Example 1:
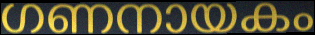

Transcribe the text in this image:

ഗണനായകം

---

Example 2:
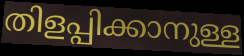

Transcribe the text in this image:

തിളപ്പിക്കാനുള്ള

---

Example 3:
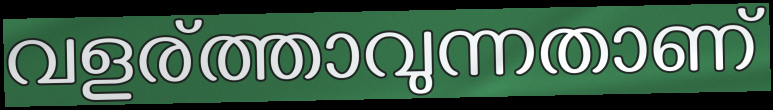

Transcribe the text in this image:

വളര്ത്താവുന്നതാണ്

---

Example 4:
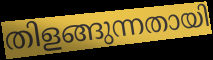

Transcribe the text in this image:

തിളങ്ങുന്നതായി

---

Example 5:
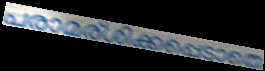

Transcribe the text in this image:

പരാമര്ശിക്കപ്പെടാതെ